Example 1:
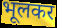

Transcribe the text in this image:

भूलकर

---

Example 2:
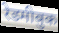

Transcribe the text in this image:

रेडमीबुक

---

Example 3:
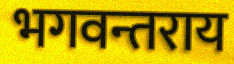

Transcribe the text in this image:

भगवन्तराय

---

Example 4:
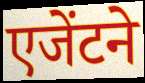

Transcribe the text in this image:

एजेंटने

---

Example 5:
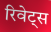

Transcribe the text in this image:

रिवेट्स